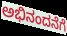
ಅಭಿನಂದನೆಗೆ